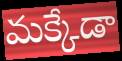
మక్కేడా